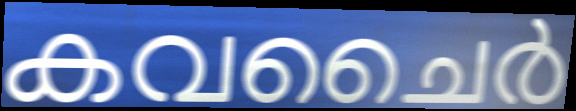
കവചൈർ